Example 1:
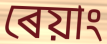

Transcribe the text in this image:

ৰেয়াং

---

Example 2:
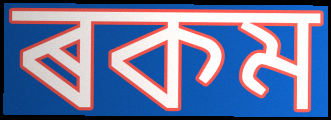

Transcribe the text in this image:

ৰকম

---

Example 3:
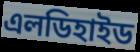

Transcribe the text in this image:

এলডিহাইড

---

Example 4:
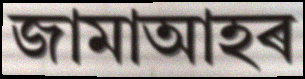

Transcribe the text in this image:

জামাআহৰ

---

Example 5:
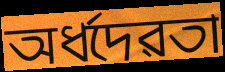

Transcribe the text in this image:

অৰ্ধদেৱতা